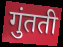
गुंतती